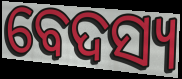
ବେଦସ୍ୟ